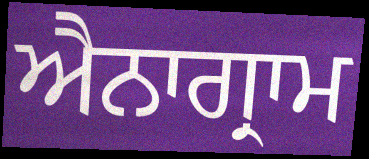
ਐਨਾਗ੍ਰਾਮ